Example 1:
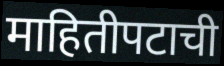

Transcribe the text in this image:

माहितीपटाची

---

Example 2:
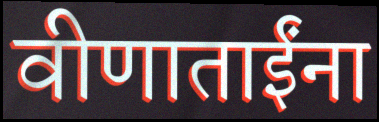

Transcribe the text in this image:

वीणाताईंना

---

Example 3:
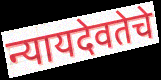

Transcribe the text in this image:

न्यायदेवतेचे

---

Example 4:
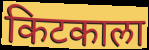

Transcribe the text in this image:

किटकाला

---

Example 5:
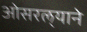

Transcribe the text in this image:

ओसरल्याने